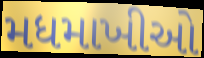
મધમાખીઓ